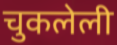
चुकलेली